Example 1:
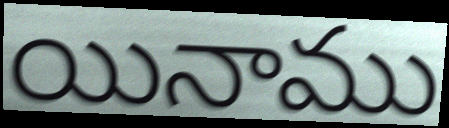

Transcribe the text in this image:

యినాము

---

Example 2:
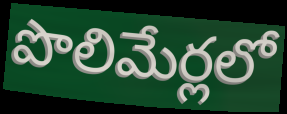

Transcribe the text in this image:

పొలిమేర్లలో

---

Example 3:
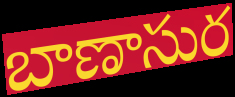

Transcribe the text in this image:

బాణాసుర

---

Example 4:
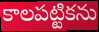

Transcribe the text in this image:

కాలపట్టికను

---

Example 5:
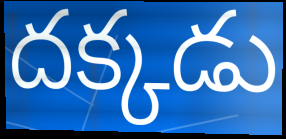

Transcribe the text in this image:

దక్కడు